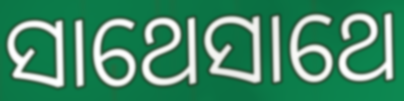
ସାଥେସାଥେ